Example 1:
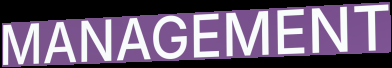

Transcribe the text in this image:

MANAGEMENT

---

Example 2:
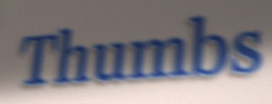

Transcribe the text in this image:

Thumbs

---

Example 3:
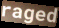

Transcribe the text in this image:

raged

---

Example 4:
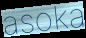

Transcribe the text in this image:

asoka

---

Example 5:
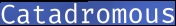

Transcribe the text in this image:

Catadromous